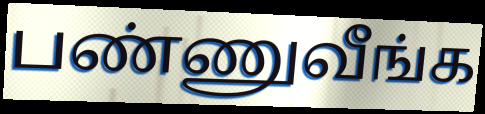
பண்ணுவீங்க